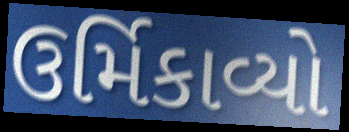
ઉર્મિકાવ્યો